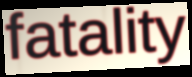
fatality